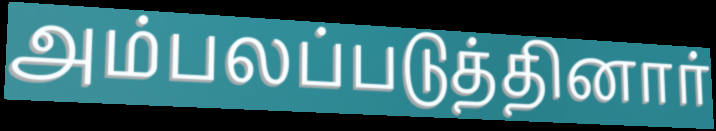
அம்பலப்படுத்தினார்